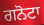
ਗਨੋਟਾ